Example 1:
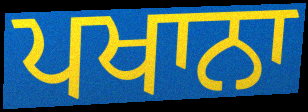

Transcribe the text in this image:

ਪਖਾਨਾ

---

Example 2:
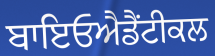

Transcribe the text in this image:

ਬਾਇਓਐਡੈਂਟੀਕਲ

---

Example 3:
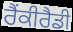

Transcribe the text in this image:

ਰੈਂਕੀਰੈਡੀ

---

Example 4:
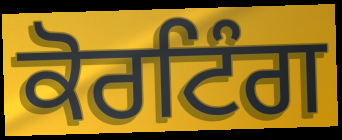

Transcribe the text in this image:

ਕੋਰਟਿੰਗ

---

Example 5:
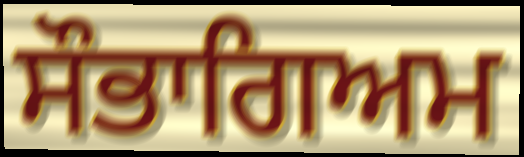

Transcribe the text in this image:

ਸੌਭਾਗਿਅਮ